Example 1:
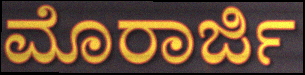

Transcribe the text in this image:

ಮೊರಾರ್ಜಿ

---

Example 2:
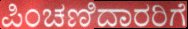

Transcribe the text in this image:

ಪಿಂಚಣಿದಾರರಿಗೆ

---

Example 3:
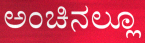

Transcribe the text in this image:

ಅಂಚಿನಲ್ಲೂ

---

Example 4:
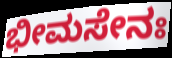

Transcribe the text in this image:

ಭೀಮಸೇನಃ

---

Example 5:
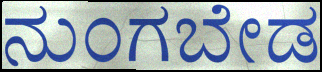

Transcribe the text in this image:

ನುಂಗಬೇಡ